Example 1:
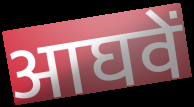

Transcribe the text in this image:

आघवें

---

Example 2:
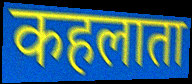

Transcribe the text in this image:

कहलाता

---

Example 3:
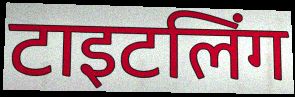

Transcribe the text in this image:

टाइटलिंग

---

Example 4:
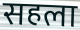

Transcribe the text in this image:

सहला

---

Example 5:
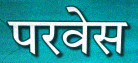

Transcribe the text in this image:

परवेस